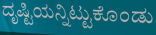
ದೃಷ್ಟಿಯನ್ನಿಟ್ಟುಕೊಂಡು